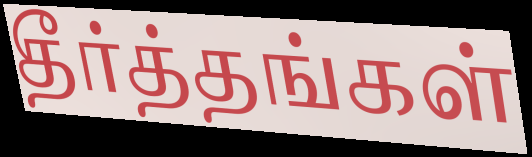
தீர்த்தங்கள்